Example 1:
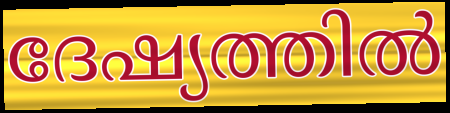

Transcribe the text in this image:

ദേഷ്യത്തിൽ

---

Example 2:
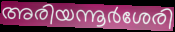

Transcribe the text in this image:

അരിയന്നൂർശേരി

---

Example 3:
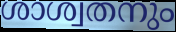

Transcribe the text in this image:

ശാശ്വതനും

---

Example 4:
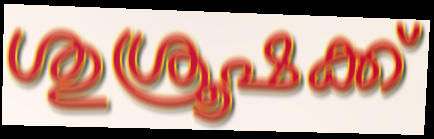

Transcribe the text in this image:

ശുശ്രൂഷക്ക്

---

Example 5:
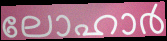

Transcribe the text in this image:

ലോഹാർ